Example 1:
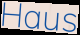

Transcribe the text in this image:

Haus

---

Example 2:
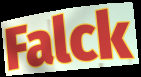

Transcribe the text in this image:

Falck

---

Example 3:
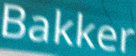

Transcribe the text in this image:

Bakker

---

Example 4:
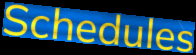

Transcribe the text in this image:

Schedules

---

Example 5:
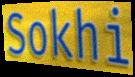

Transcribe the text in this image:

Sokhi